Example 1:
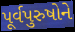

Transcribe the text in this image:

પૂર્વપુરુષોને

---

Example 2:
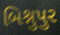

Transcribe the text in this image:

બિશ્નુપુર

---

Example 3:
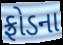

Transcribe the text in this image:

ફ્રોડના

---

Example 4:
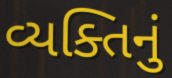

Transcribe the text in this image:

વ્યક્તિનું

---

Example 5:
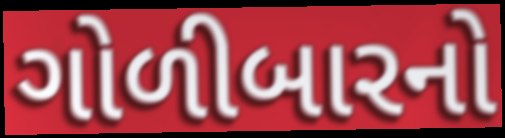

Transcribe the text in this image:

ગોળીબારનો